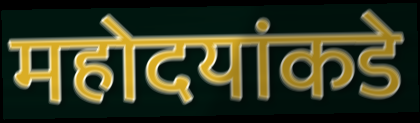
महोदयांकडे